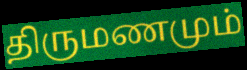
திருமணமும்